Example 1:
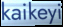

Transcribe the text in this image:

kaikeyi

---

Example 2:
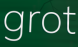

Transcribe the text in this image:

grot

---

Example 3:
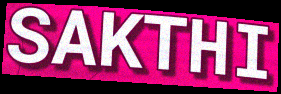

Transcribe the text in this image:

SAKTHI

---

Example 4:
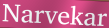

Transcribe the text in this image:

Narvekar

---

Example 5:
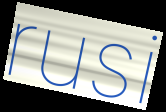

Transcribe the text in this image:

rusi